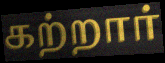
கற்றார்